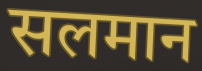
सलमान